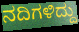
ನದಿಗಳಿದ್ದು